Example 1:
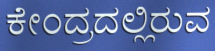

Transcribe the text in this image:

ಕೇಂದ್ರದಲ್ಲಿರುವ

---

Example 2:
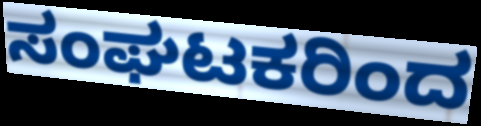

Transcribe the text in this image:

ಸಂಘಟಕರಿಂದ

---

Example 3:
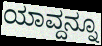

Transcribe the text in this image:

ಯಾವ್ದನ್ನೂ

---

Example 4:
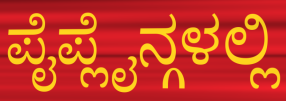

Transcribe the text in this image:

ಪೈಪ್ಲೈನ್ಗಳಲ್ಲಿ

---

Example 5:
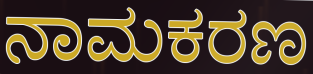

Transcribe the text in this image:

ನಾಮಕರಣ